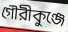
গৌরীকুঞ্জে